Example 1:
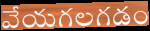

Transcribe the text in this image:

వేయగలగడం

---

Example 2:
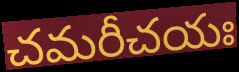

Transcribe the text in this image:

చమరీచయః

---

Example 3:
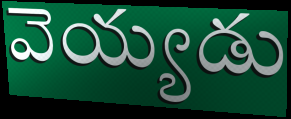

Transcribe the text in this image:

వెయ్యడు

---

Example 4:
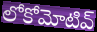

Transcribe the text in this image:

లోకోమోటివ్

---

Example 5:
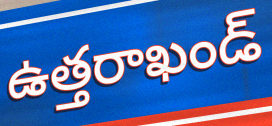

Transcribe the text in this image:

ఉత్తరాఖండ్